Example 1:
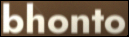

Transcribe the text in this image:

bhonto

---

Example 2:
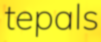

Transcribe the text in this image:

tepals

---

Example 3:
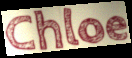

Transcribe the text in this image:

Chloe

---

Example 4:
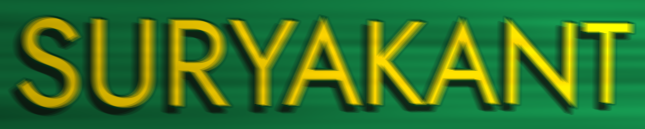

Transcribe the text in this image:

SURYAKANT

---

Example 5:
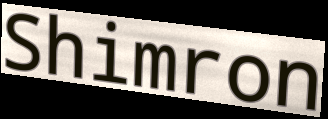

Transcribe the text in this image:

Shimron